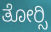
ತೋರ್‍ಸಿ